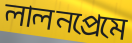
লালনপ্রেমে